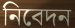
নিবেদন